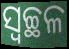
ସ୍ବଚ୍ଛଳ